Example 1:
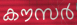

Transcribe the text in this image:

കൗസർ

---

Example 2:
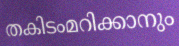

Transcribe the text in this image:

തകിടംമറിക്കാനും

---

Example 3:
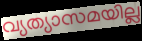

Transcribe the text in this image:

വ്യത്യാസമയില്ല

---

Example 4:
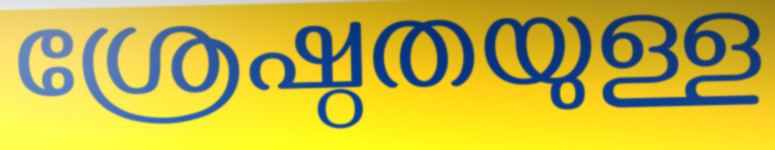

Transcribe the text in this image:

ശ്രേഷ്ഠതയുള്ള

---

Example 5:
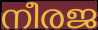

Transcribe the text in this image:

നീരജ